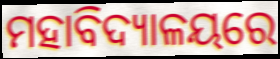
ମହାବିଦ୍ୟାଳୟରେ